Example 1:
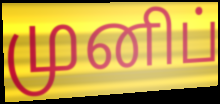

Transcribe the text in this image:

முனிப்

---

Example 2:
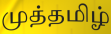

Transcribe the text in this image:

முத்தமிழ்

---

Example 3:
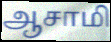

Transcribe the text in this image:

ஆசாமி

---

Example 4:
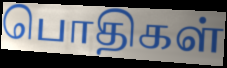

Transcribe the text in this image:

பொதிகள்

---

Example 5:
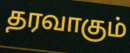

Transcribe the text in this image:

தரவாகும்